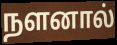
நளனால்